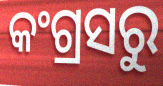
କଂଗ୍ରସରୁ